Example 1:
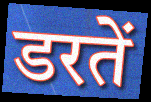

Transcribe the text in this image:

डरतें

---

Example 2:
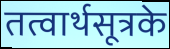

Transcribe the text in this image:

तत्वार्थसूत्रके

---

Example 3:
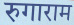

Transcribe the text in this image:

रुगाराम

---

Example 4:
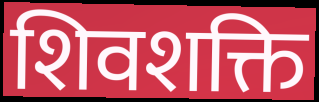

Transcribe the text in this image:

शिवशक्ति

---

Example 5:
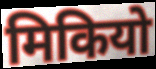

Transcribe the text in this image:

मिकियो